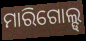
ମାରିଗୋଲ୍ଡ୍